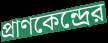
প্রাণকেন্দ্রের